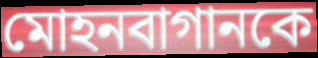
মোহনবাগানকে